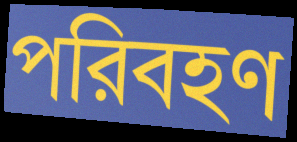
পরিবহণ